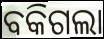
ବକିଗଲା